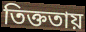
তিক্ততায়